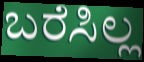
ಬರೆಸಿಲ್ಲ